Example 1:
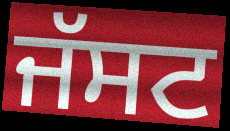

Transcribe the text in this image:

ਜੱਸਟ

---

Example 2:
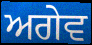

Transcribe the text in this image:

ਅਗੇਵ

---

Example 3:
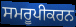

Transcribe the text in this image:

ਸਮਰੂਪੀਕਰਨ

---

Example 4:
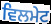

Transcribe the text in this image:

ਵਿਲਮੇਟ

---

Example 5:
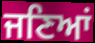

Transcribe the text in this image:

ਜਣਿਆਂ